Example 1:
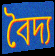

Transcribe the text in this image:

বৈদ্য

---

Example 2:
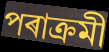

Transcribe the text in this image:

পৰাক্ৰমী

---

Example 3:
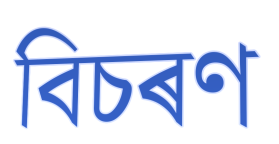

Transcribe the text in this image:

বিচৰণ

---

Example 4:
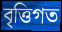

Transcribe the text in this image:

বৃত্তিগত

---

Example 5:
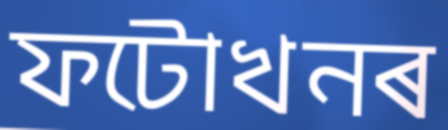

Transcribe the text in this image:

ফটোখনৰ